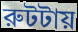
রুটটায়